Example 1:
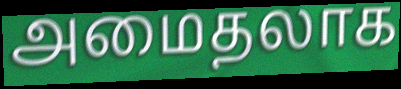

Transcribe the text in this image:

அமைதலாக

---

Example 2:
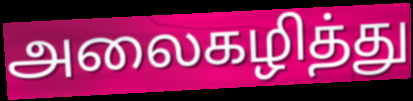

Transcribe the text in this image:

அலைகழித்து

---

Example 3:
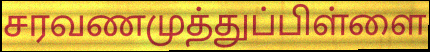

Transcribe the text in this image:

சரவணமுத்துப்பிள்ளை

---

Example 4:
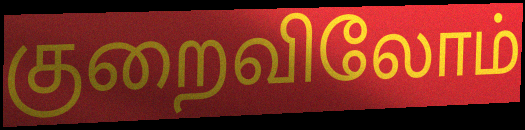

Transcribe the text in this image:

குறைவிலோம்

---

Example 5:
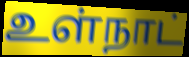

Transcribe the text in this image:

உள்நாட்